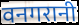
वनगरानी